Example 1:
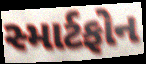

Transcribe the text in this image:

સ્માર્ટફોન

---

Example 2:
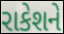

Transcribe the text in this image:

રાકેશને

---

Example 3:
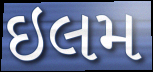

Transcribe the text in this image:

ઇલમ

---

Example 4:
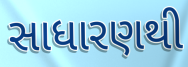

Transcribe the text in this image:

સાધારણથી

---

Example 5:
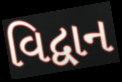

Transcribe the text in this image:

વિદ્વાન